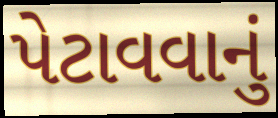
પેટાવવાનું